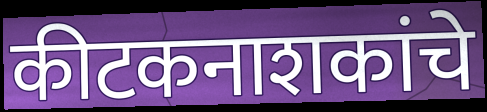
कीटकनाशकांचे